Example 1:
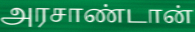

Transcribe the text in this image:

அரசாண்டான்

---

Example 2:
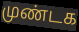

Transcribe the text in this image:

முண்டக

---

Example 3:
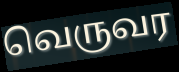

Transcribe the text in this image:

வெருவர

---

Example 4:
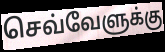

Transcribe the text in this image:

செவ்வேளுக்கு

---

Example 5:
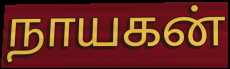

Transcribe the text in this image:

நாயகன்